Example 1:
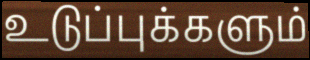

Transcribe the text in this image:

உடுப்புக்களும்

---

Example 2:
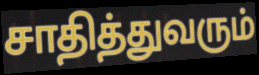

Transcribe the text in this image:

சாதித்துவரும்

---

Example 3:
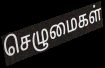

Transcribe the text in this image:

செழுமைகள்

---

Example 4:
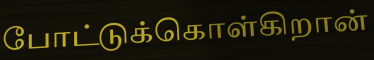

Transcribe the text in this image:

போட்டுக்கொள்கிறான்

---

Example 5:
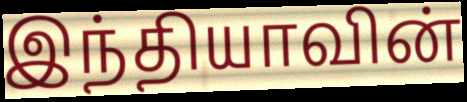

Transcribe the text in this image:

இந்தியாவின்